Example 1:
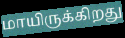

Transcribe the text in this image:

மாயிருக்கிறது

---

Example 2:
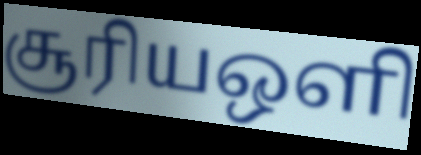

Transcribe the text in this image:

சூரியஒளி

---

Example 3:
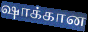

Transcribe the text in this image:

ஷாக்கான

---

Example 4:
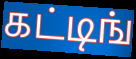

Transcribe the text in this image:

கட்டிங்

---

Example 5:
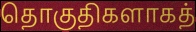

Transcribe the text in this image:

தொகுதிகளாகத்